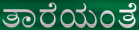
ತಾರೆಯಂತೆ